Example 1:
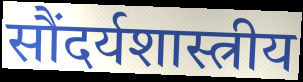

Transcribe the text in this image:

सौंदर्यशास्त्रीय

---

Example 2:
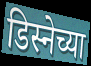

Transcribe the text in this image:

डिस्नेच्या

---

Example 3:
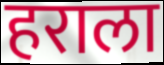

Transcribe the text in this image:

हराला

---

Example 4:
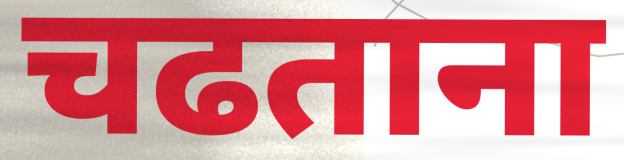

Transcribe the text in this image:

चढताना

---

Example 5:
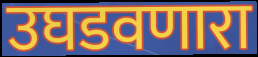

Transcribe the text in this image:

उघडवणारा